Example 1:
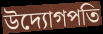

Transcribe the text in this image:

উদ্যোগপতি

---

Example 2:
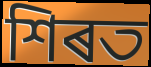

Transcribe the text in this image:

শিৰত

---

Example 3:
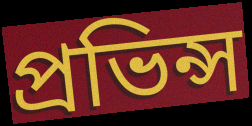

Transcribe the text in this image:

প্ৰভিন্স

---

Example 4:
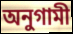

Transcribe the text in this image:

অনুগামী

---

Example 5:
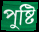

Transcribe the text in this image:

পুষ্টি